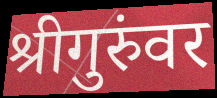
श्रीगुरुंवर